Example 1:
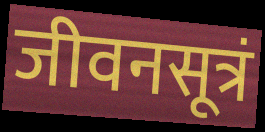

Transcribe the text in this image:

जीवनसूत्रं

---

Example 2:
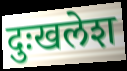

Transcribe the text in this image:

दुःखलेश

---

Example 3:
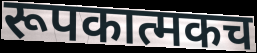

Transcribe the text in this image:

रूपकात्मकच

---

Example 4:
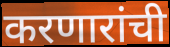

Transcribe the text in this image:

करणारांची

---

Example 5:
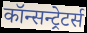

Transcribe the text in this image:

कॉन्सन्ट्रेटर्स